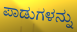
ಪಾಡುಗಳನ್ನು